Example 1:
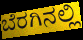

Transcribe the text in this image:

ಬೆರಗಿನಲ್ಲಿ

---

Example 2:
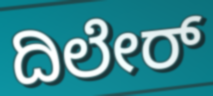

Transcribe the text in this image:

ದಿಲೇರ್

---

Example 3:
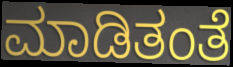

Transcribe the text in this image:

ಮಾಡಿತಂತೆ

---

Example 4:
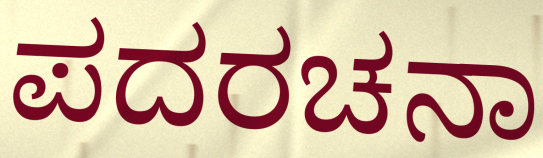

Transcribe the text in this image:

ಪದರಚನಾ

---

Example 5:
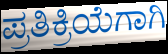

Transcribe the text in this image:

ಪ್ರತಿಕ್ರಿಯೆಗಾಗಿ